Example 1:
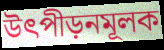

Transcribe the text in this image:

উৎপীড়নমূলক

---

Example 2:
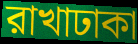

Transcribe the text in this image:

রাখাঢাকা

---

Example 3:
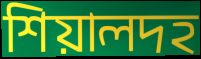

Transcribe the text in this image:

শিয়ালদহ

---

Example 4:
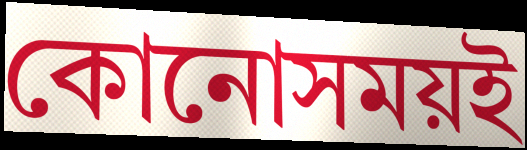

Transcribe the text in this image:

কোনোসময়ই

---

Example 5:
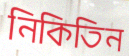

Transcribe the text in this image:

নিকিতিন